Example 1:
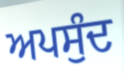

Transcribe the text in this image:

ਅਪਸੁੰਦ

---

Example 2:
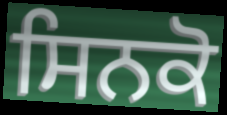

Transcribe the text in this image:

ਸਿਨਕੋ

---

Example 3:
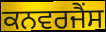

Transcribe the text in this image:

ਕਨਵਰਜੈਂਸ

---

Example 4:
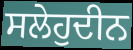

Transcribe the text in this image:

ਸਲੇਹੁਦੀਨ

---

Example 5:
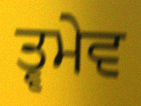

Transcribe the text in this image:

ਤ੍ਵਮੇਵ